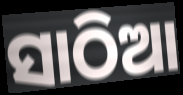
ସାଠିଆ